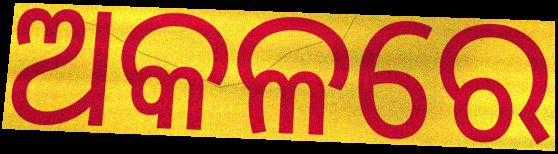
ଅକଳରେ